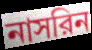
নাসরিন